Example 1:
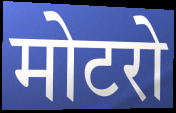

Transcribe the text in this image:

मोटरो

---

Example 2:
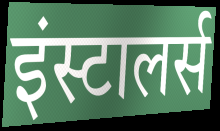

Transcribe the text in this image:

इंस्टालर्स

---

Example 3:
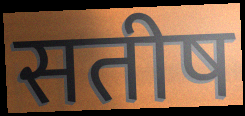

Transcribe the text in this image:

सतीष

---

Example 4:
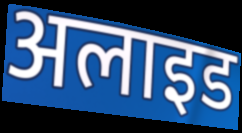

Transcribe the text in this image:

अलाइड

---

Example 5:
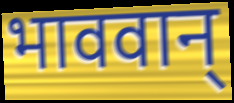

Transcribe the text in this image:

भाववान्